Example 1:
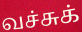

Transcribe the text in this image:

வச்சுக்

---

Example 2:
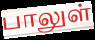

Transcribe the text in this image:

பாலுள்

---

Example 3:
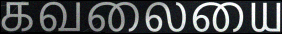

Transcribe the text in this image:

கவலையை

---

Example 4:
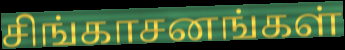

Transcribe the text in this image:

சிங்காசனங்கள்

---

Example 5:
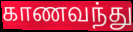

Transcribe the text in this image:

காணவந்து